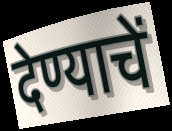
देण्याचें